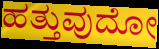
ಹತ್ತುವುದೋ